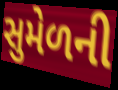
સુમેળની